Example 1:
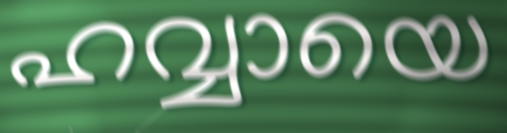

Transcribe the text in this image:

ഹവ്വായെ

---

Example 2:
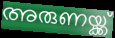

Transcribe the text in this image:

അരുണയ്ക്ക്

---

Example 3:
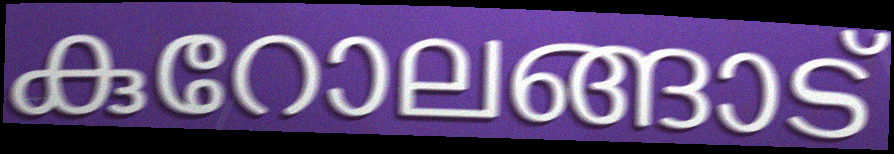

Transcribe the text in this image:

കുറോലങ്ങാട്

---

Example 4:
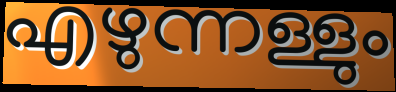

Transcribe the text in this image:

എഴുന്നള്ളും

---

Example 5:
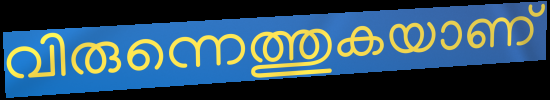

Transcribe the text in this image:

വിരുന്നെത്തുകയാണ്